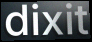
dixit